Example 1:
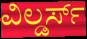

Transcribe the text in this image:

ವಿಲ್ಡರ್ಸ್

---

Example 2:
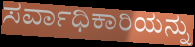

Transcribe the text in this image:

ಸರ್ವಾಧಿಕಾರಿಯನ್ನು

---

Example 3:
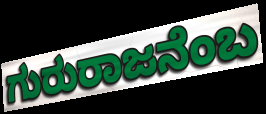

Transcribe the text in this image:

ಗುರುರಾಜನೆಂಬ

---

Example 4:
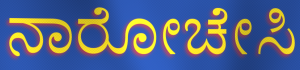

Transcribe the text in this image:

ನಾರೋಚೇಸಿ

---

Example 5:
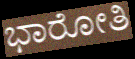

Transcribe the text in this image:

ಭಾರೋತಿ